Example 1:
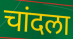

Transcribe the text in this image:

चांदला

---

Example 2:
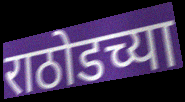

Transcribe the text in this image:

राठोडच्या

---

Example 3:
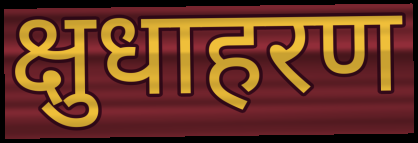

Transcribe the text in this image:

क्षुधाहरण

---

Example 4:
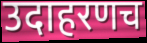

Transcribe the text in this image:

उदाहरणच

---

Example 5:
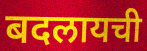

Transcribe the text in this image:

बदलायची